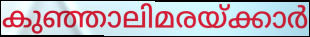
കുഞ്ഞാലിമരയ്ക്കാർ